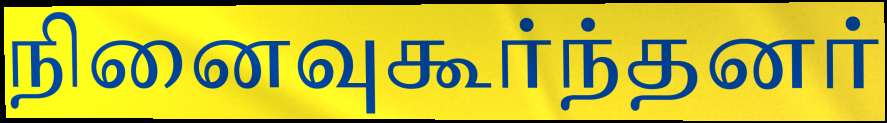
நினைவுகூர்ந்தனர்